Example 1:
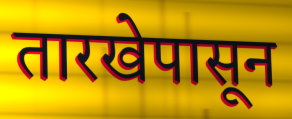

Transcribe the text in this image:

तारखेपासून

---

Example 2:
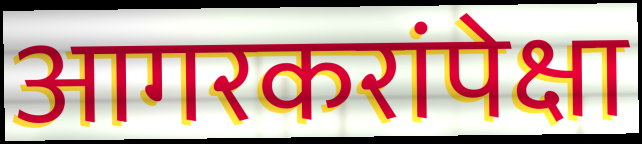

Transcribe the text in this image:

आगरकरांपेक्षा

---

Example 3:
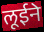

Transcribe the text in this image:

लूईने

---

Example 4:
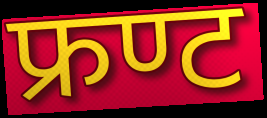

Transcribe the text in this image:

फ्रण्ट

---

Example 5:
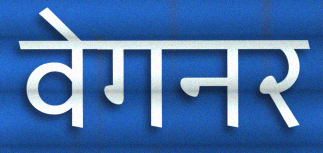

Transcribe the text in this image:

वेगनर